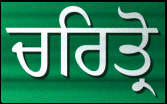
ਚਰਿਤ੍ਰੋ